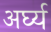
अर्घ्य